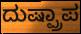
ದುಷ್ಪ್ರಾಪ